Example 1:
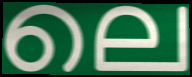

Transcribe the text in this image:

ലെ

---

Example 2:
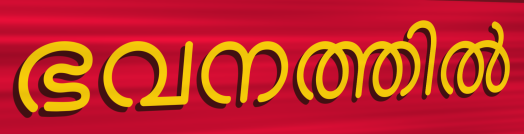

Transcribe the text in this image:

ഭവനത്തിൽ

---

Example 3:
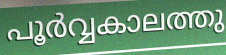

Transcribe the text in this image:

പൂർവ്വകാലത്തു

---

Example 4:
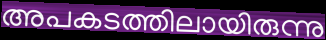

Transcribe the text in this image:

അപകടത്തിലായിരുന്നു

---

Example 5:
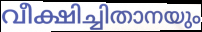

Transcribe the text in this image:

വീക്ഷിച്ചിതാനയും